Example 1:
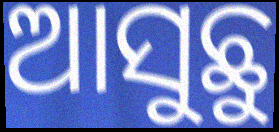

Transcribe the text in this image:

ଆସୁଛୁ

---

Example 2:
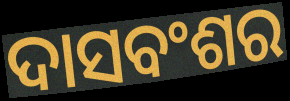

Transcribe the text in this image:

ଦାସବଂଶର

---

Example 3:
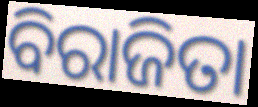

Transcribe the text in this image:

ବିରାଜିତା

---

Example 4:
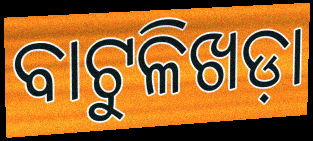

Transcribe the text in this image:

ବାଟୁଳିଖଡ଼ା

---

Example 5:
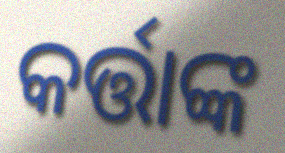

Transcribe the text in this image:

କର୍ତ୍ତାଙ୍କ